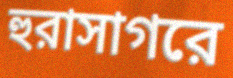
হুরাসাগরে